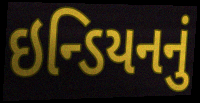
ઇન્ડિયનનું